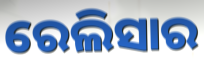
ରେଲିସାର